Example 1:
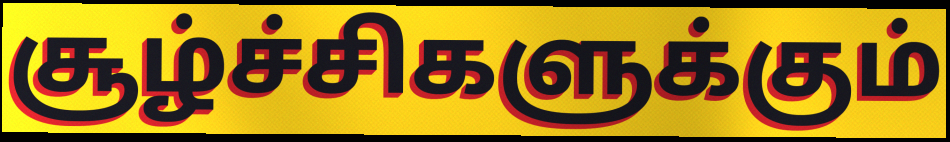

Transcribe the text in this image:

சூழ்ச்சிகளுக்கும்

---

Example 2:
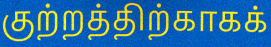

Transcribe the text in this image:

குற்றத்திற்காகக்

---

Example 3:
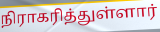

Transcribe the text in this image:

நிராகரித்துள்ளார்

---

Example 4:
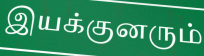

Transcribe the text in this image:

இயக்குனரும்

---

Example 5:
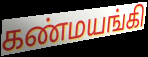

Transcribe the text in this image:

கண்மயங்கி